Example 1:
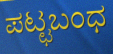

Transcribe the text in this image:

ಪಟ್ಟಬಂಧ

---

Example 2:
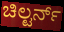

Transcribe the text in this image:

ಚಿಲ್ಟರ್ನ್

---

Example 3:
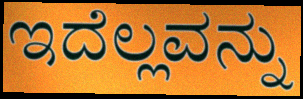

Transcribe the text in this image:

ಇದೆಲ್ಲವನ್ನು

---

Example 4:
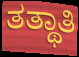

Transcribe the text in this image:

ತತ್ಥಾತಿ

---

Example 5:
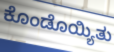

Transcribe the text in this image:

ಕೊಂಡೊಯ್ಯಿತು